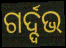
ଗର୍ଦ୍ଦଭ